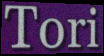
Tori